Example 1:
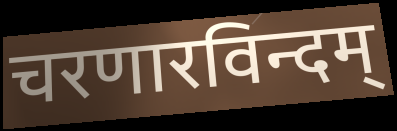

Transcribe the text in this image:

चरणारविन्दम्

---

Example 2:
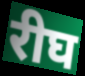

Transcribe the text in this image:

रीघ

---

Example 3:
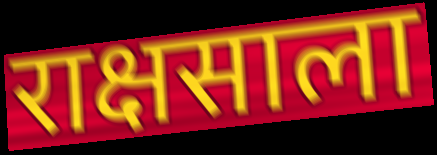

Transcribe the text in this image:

राक्षसाला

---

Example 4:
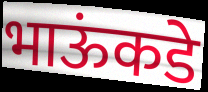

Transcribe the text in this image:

भाऊंकडे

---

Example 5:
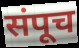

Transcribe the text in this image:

संपूच